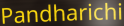
Pandharichi